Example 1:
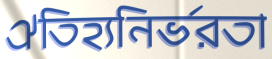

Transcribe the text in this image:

ঐতিহ্যনির্ভরতা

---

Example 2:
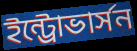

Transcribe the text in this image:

ইন্ট্রোভার্সন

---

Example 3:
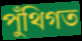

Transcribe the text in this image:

পুঁথিগত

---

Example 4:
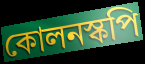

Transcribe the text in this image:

কোলনস্কপি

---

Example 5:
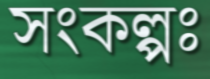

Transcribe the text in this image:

সংকল্পঃ